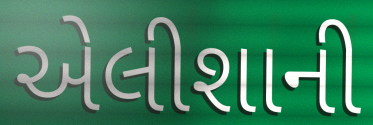
એલીશાની